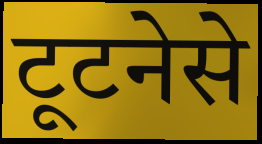
टूटनेसे